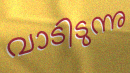
വാടിടുന്നു